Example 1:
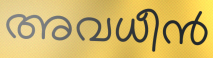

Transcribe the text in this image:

അവധീൻ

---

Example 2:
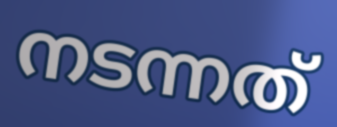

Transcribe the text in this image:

നടന്നത്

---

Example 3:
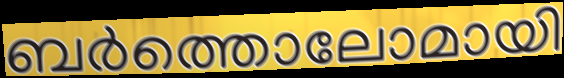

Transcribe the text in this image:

ബർത്തൊലോമായി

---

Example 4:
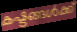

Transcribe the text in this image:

കഷ്ടങ്ങൾക്ക്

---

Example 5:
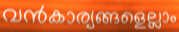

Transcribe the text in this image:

വൻകാര്യങ്ങളെല്ലാം